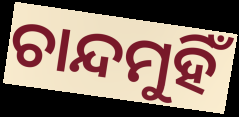
ଚାନ୍ଦମୁହିଁ